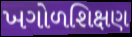
ખગોળશિક્ષણ